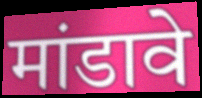
मांडावे